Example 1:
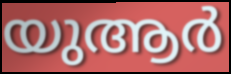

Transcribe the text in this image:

യുആർ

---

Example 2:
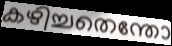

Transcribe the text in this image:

കഴിച്ചതെന്തോ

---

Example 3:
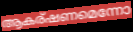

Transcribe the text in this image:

ആകര്ഷണമെന്നോ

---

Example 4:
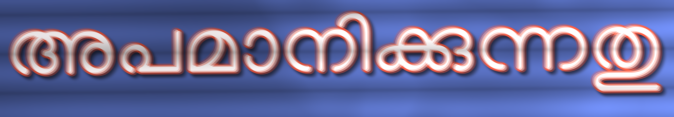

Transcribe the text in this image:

അപമാനിക്കുന്നതു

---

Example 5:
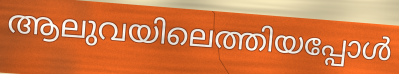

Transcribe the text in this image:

ആലുവയിലെത്തിയപ്പോൾ